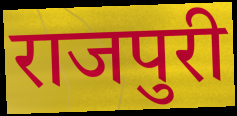
राजपुरी